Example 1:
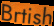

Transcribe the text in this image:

Brtish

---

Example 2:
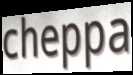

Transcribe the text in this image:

cheppa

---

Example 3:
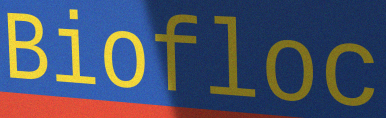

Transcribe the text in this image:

Biofloc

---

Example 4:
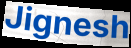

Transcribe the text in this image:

Jignesh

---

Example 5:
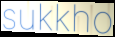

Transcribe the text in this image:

sukkho